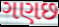
ગણછ